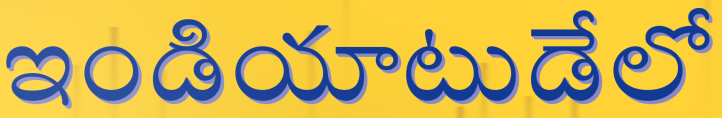
ఇండియాటుడేలో